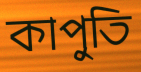
কাপুতি